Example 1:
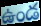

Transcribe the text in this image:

ఉండ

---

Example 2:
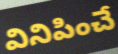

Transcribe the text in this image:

వినిపించే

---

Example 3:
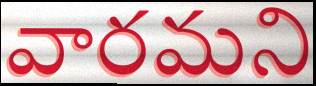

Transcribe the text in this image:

వారమని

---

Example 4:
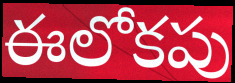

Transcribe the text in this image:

ఈలోకపు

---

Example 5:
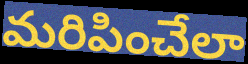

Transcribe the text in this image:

మరిపించేలా